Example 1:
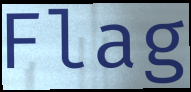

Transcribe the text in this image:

Flag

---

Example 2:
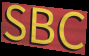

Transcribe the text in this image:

SBC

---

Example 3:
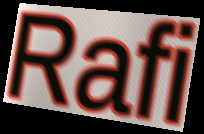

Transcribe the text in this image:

Rafi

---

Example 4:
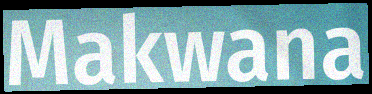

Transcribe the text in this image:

Makwana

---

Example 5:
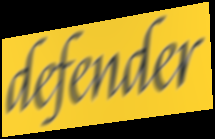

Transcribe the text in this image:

defender